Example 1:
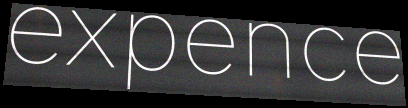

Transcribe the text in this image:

expence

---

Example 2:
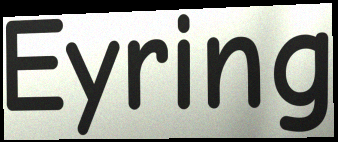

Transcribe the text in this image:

Eyring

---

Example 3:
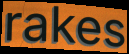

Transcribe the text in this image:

rakes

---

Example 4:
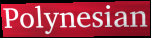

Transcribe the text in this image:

Polynesian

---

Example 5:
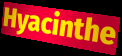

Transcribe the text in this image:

Hyacinthe